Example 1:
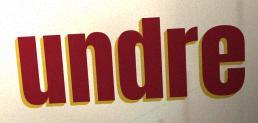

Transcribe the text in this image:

undre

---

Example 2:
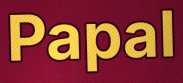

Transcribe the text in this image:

Papal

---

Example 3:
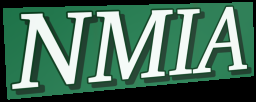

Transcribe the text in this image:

NMIA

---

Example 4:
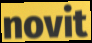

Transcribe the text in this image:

novit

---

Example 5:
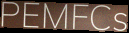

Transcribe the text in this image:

PEMFCs